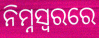
ନିମ୍ନସ୍ୱରରେ